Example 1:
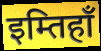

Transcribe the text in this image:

इम्तिहाँ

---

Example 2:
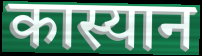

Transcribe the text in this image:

कास्यान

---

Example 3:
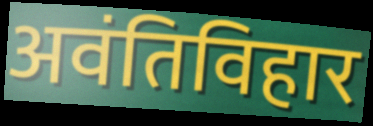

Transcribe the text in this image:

अवंतिविहार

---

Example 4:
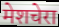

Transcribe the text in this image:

मेशचेरा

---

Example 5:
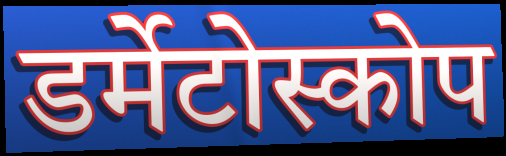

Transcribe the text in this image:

डर्मेटोस्कोप